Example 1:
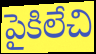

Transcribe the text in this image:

పైకిలేచి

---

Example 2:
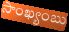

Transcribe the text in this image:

సాంఖ్యంబు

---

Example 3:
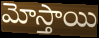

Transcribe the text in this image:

మోస్తాయి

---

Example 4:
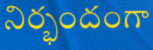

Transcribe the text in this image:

నిర్భందంగా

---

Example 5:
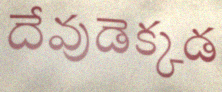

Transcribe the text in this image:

దేవుడెక్కడ